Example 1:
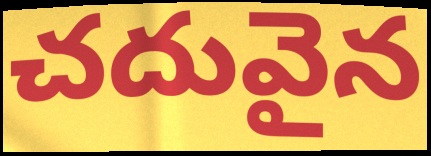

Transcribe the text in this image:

చదువైన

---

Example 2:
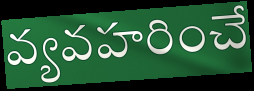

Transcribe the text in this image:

వ్యవహరించే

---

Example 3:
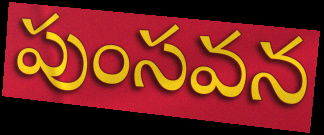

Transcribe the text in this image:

పుంసవన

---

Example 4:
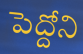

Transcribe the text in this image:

పెద్దోని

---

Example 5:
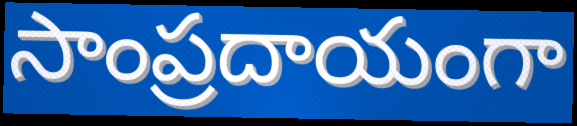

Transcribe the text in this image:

సాంప్రదాయంగా